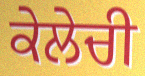
ਕੇਲੇਚੀ